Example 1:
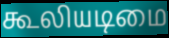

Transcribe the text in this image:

கூலியடிமை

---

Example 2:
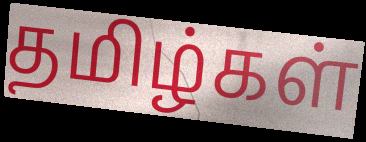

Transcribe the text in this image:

தமிழ்கள்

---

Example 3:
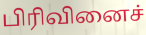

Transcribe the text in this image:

பிரிவினைச்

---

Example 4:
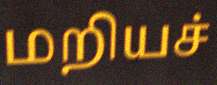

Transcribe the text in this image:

மறியச்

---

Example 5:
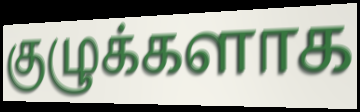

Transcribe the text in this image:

குழுக்களாக